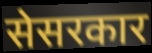
सेसरकार